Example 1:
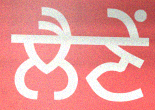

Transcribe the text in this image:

ਲੈਣੇਂ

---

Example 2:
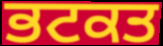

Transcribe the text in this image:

ਭਟਕਤ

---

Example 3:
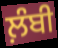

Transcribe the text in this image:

ਲ਼ੰਬੀ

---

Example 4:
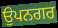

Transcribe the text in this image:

ਉਪਨਗਰ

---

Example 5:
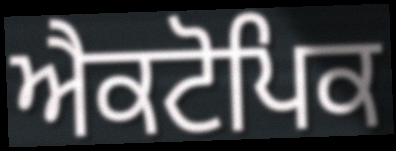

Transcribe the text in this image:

ਐਕਟੋਪਿਕ